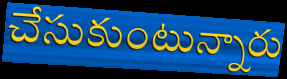
చేసుకుంటున్నారు